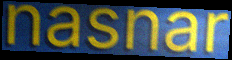
nasnar